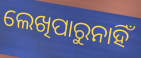
ଲେଖିପାରୁନାହିଁ